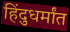
हिंदुधर्मांत